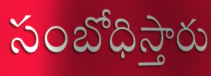
సంబోధిస్తారు